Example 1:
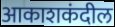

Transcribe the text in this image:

आकाशकंदील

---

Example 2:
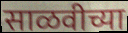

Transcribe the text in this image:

साळवीच्या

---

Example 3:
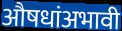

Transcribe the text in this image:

औषधांअभावी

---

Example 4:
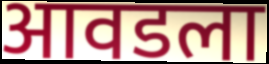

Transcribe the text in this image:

आवडला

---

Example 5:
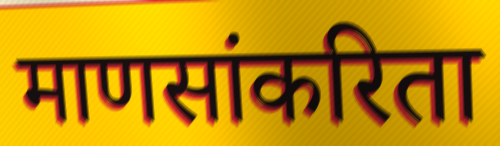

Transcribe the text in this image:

माणसांकरिता